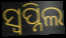
ସ୍ୱପ୍ନିଲ